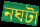
নঘটা